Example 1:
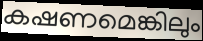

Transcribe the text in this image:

കഷണമെങ്കിലും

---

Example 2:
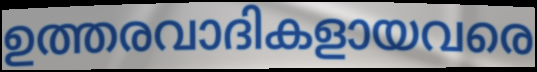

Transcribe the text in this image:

ഉത്തരവാദികളായവരെ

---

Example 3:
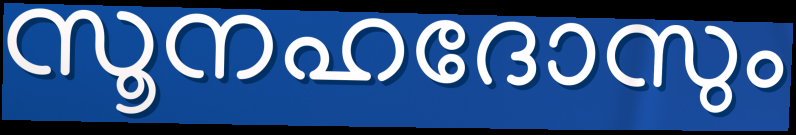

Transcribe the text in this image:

സൂനഹദോസും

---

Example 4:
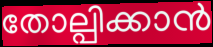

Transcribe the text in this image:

തോല്പിക്കാൻ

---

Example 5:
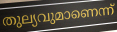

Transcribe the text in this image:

തുല്യവുമാണെന്ന്